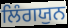
ਲਿੰਗਯੁਨ